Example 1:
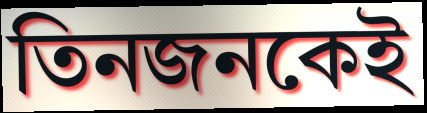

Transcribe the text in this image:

তিনজনকেই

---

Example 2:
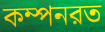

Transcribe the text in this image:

কম্পনরত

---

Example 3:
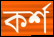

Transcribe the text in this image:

কর্শ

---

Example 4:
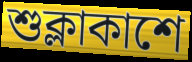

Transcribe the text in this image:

শুক্লাকাশে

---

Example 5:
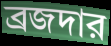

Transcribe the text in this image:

ব্রজদার